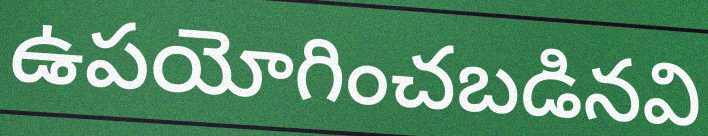
ఉపయోగించబడినవి